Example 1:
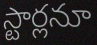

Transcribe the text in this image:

స్టార్లనూ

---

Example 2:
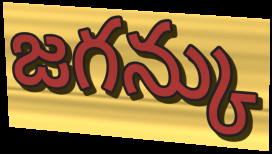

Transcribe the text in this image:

జగన్కు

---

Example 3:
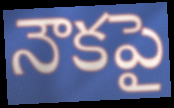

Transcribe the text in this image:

నౌకపై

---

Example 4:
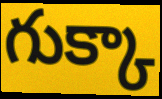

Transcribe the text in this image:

గుక్కా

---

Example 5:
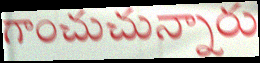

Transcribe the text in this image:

గాంచుచున్నారు